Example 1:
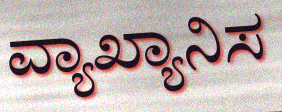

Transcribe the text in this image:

ವ್ಯಾಖ್ಯಾನಿಸ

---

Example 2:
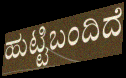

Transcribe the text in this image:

ಹುಟ್ಟಿಬಂದಿದೆ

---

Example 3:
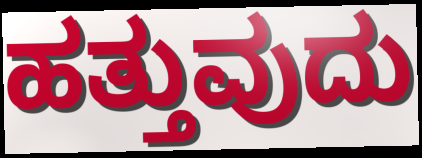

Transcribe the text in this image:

ಹತ್ತುವುದು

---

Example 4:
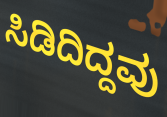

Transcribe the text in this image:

ಸಿಡಿದಿದ್ದವು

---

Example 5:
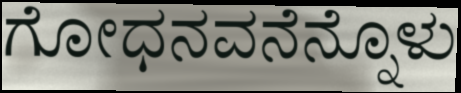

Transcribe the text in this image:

ಗೋಧನವನೆನ್ನೊಳು